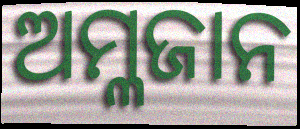
ଅମ୍ଳଜାନ